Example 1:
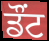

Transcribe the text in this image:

ਡੌਂਟ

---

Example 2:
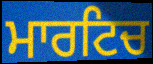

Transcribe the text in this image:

ਮਾਰਟਿਚ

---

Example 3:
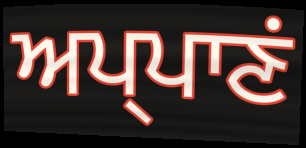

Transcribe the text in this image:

ਅਪ੍ਪਾਣਂ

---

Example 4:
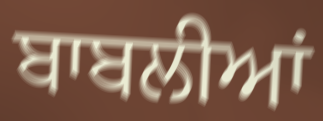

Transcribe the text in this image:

ਬਾਬਲੀਆਂ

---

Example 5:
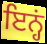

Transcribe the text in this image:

ਇਨ੍ਹਂ